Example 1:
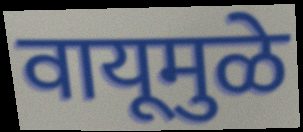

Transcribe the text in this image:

वायूमुळे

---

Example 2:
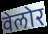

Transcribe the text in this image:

वेलोर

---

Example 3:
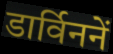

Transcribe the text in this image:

डार्विननें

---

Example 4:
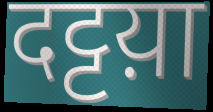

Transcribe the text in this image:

दट्टय़ा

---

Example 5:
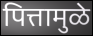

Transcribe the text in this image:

पित्तामुळे